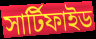
সার্টিফাইড